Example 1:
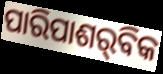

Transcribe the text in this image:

ପାରିପାଶର୍‌ବିକ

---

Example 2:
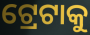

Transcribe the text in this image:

ଟ୍ରେଟାକୁ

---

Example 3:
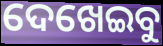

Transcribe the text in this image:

ଦେଖେଇବୁ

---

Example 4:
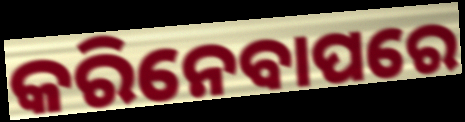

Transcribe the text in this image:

କରିନେବାପରେ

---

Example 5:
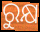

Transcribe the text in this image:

ରୁକ୍ଷ